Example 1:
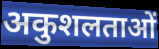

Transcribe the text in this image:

अकुशलताओं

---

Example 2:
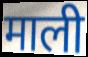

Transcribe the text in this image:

माली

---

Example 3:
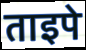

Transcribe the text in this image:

ताइपे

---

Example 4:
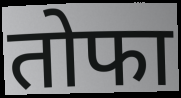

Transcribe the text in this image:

तोफा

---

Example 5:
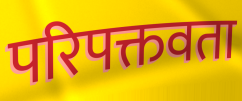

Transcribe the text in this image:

परिपक्तवता